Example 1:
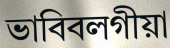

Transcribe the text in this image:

ভাবিবলগীয়া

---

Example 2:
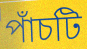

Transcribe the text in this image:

পাঁচটি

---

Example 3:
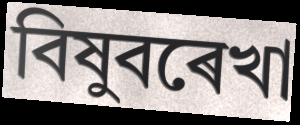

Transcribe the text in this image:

বিষুবৰেখা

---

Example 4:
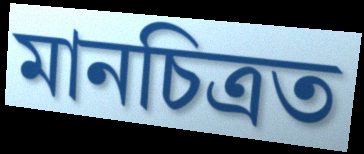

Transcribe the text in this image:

মানচিত্ৰত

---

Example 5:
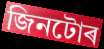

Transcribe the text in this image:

জিনটোৰ